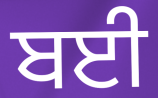
ਬਈ